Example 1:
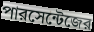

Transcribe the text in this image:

পারসেন্টেজের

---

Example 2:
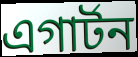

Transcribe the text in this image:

এগার্টন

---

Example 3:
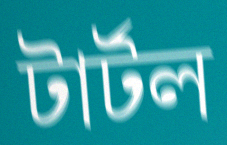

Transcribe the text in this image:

টার্টল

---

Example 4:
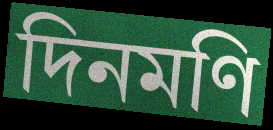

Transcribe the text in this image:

দিনমণি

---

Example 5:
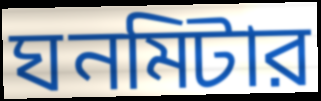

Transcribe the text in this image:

ঘনমিটার